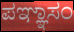
ಪಞ್ಞಾಸಂ